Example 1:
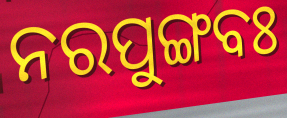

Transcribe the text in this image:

ନରପୁଙ୍ଗବଃ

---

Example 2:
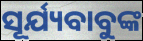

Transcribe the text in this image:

ସୂର୍ଯ୍ୟବାବୁଙ୍କ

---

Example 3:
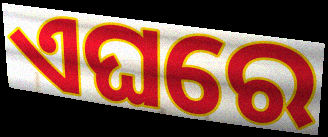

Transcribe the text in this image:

ଏଘରେ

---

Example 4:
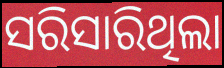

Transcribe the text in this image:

ସରିସାରିଥିଲା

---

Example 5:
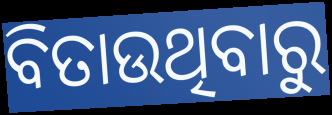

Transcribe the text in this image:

ବିତାଉଥିବାରୁ